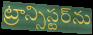
ట్రాన్సిస్టర్‌ను